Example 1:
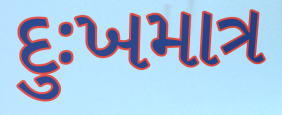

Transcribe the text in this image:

દુઃખમાત્ર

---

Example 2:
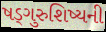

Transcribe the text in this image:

ષડ્ગુરુશિષ્યની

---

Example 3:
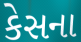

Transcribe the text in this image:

કેસના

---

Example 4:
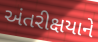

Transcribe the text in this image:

અંતરીક્ષયાને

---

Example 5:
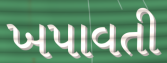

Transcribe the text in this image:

ખપાવતી